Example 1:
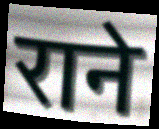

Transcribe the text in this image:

राने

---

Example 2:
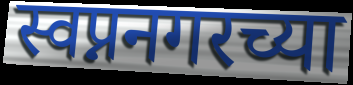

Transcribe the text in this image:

स्वप्ननगरच्या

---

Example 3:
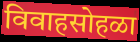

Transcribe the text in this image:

विवाहसोहळा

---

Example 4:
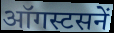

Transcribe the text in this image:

ऑगस्टसनें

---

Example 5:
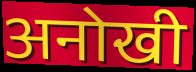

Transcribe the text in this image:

अनोखी